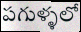
పగుళ్ళలో